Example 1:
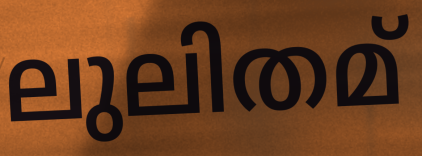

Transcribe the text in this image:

ലുലിതമ്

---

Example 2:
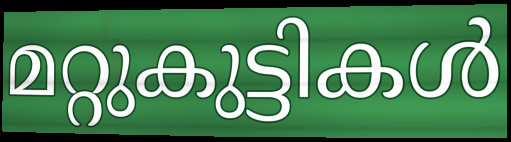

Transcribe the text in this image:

മറ്റുകുട്ടികൾ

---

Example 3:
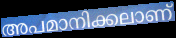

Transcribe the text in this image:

അപമാനിക്കലാണ്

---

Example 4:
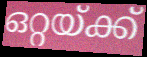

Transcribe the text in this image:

ഒറ്റയ്ക്ക്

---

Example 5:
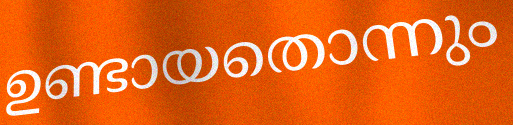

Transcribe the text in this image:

ഉണ്ടായതൊന്നും